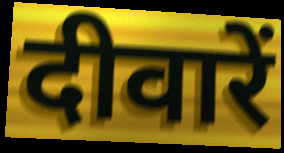
दीवारें